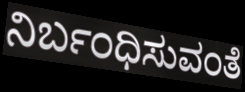
ನಿರ್ಬಂಧಿಸುವಂತೆ